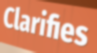
Clarifies